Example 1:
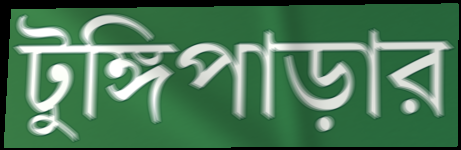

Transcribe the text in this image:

টুঙ্গিপাড়ার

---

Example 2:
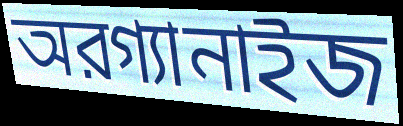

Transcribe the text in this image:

অরগ্যানাইজ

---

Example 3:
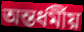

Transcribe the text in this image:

অন্তর্ধর্মীয়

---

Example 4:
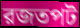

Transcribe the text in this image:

রজতপট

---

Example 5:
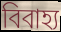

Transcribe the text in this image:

বিবাহ্য